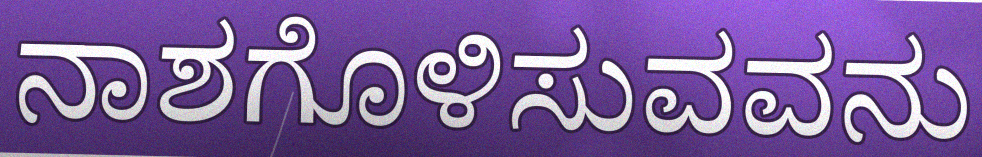
ನಾಶಗೊಳಿಸುವವನು